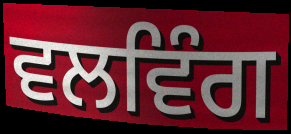
ਵਲਵਿੰਗ